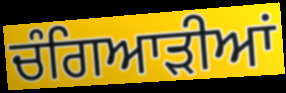
ਚੰਗਿਆੜੀਆਂ